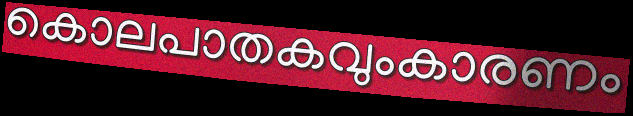
കൊലപാതകവുംകാരണം